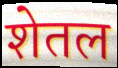
शेतल